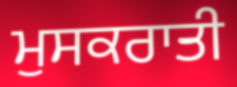
ਮੁਸਕਰਾਤੀ